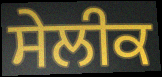
ਸੇਲੀਕ